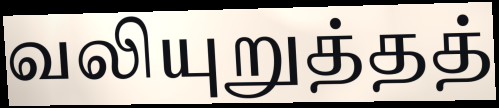
வலியுறுத்தத்